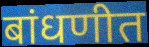
बांधणीत